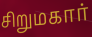
சிறுமகார்